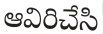
ఆవిరిచేసి